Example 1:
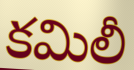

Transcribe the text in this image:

కమిలీ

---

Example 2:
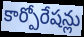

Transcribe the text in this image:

కార్పోరేషన్లు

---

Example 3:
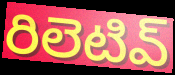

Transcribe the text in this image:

రిలెటివ్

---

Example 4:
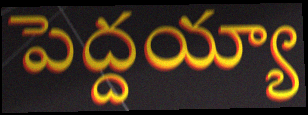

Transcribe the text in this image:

పెద్దయ్యా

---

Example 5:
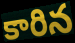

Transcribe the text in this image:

కారిన